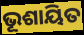
ଭୂଶାୟିତ